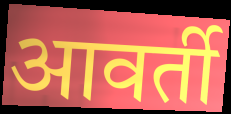
आवर्ती